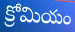
క్రోమియం